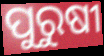
ପୁରୁଷୀ